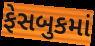
ફેસબુકમાં